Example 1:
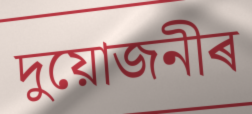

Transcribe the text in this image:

দুয়োজনীৰ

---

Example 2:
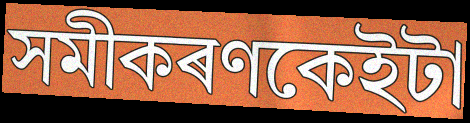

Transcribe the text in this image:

সমীকৰণকেইটা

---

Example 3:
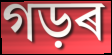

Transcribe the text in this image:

গড়ৰ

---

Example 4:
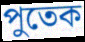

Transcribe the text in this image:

পুতেক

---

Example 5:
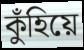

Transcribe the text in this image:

কুঁহিয়ে